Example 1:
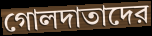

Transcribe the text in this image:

গোলদাতাদের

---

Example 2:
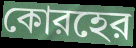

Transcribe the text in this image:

কোরহের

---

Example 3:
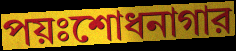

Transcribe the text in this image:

পয়ঃশোধনাগার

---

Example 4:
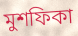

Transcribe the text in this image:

মুশফিকা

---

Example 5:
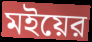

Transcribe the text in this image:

মইয়ের